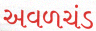
અવળચંડ